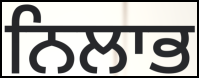
ਨਿਲਾਭ